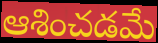
ఆశించడమే